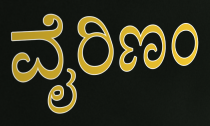
ವೈರಿಣಂ